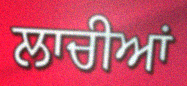
ਲਾਚੀਆਂ